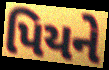
પિયને